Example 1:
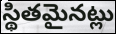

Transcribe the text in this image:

స్థితమైనట్లు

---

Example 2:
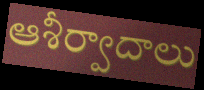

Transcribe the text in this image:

ఆశీర్వాదాలు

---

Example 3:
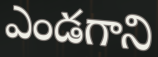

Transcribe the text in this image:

ఎండగాని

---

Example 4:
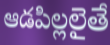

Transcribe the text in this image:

ఆడపిల్లలైతే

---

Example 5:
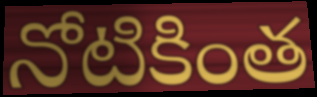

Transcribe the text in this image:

నోటికింత